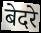
बेदरे